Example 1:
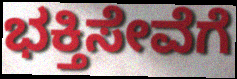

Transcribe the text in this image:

ಭಕ್ತಿಸೇವೆಗೆ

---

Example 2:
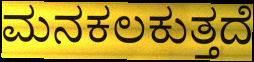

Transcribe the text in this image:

ಮನಕಲಕುತ್ತದೆ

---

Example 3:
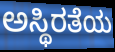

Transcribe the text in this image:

ಅಸ್ಥಿರತೆಯ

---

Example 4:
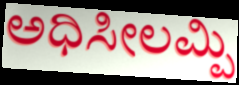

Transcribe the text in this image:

ಅಧಿಸೀಲಮ್ಪಿ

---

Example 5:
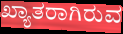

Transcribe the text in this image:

ಖ್ಯಾತರಾಗಿರುವ